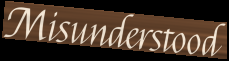
Misunderstood